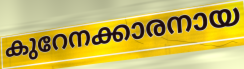
കുറേനക്കാരനായ